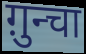
ग़ुन्चा